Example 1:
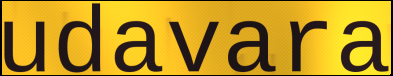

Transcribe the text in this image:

udavara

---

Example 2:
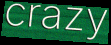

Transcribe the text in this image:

crazy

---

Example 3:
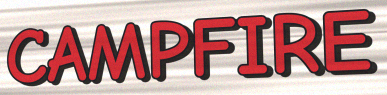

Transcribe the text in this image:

CAMPFIRE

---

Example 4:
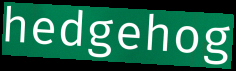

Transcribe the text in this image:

hedgehog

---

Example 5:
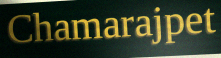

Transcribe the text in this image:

Chamarajpet